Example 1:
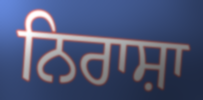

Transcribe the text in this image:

ਨਿਰਾਸ਼ਾ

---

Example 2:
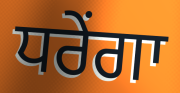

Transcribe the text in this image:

ਧਰੇਂਗਾ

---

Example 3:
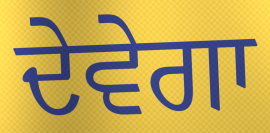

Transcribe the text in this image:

ਦੇਵੇਗਾ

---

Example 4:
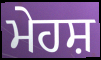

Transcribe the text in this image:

ਮੇਹਸ਼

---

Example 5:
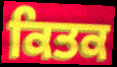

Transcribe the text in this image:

ਕਿਤਕ